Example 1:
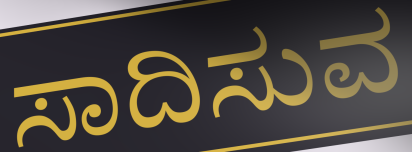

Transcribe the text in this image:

ಸಾದಿಸುವ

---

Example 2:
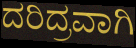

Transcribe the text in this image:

ದರಿದ್ರವಾಗಿ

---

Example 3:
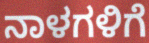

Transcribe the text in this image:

ನಾಳಗಳಿಗೆ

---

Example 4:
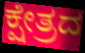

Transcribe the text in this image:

ಕ್ಷೇತ್ರದ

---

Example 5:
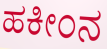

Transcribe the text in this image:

ಹಕೀಂನ